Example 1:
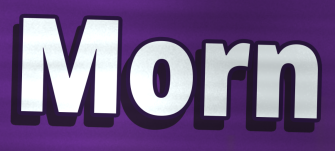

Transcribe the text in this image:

Morn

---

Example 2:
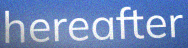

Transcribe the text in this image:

hereafter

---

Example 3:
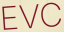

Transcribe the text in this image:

EVC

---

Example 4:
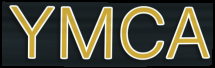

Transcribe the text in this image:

YMCA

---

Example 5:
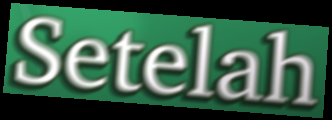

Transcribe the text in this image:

Setelah